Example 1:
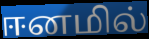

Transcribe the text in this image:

ஈனமில்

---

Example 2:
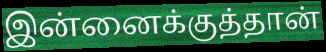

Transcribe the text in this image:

இன்னைக்குத்தான்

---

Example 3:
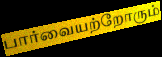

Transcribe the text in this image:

பார்வையற்றோரும்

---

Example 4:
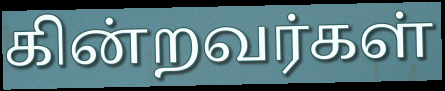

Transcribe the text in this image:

கின்றவர்கள்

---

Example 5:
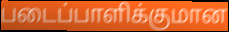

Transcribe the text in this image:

படைப்பாளிக்குமான